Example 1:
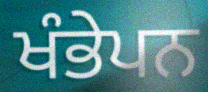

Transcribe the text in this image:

ਖੰਭੇਪਨ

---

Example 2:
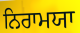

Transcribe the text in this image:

ਨਿਰਾਮਯਾ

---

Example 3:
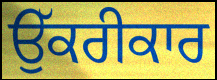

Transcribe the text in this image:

ਉੱਕਰੀਕਾਰ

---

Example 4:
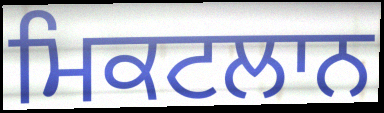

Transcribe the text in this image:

ਮਿਕਟਲਾਨ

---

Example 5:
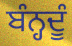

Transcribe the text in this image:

ਬੰਨ੍ਹਦੂੰ